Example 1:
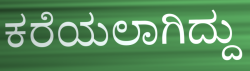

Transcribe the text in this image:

ಕರೆಯಲಾಗಿದ್ದು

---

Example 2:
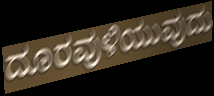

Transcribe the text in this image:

ದೂರವುಳಿಯುವುದು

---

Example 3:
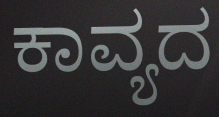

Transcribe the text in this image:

ಕಾವ್ಯದ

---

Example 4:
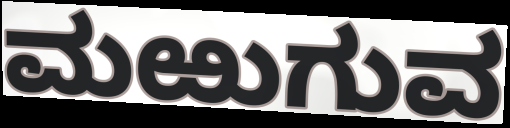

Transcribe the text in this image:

ಮಱುಗುವ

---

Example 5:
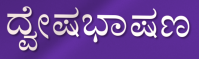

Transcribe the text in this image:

ದ್ವೇಷಭಾಷಣ